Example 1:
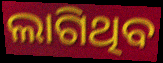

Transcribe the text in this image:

ଲାଗିଥିବ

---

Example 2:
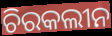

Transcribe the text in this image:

ଚିରକଲୀନ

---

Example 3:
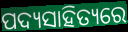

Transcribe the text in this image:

ପଦ୍ୟସାହିତ୍ୟରେ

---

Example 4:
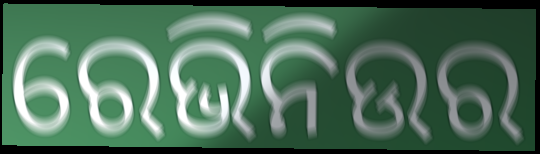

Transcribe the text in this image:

ରେଭିନିଉର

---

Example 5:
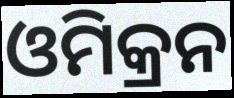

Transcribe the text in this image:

ଓମିକ୍ରନ